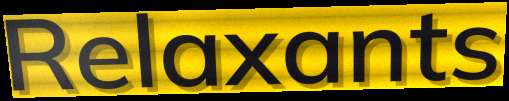
Relaxants